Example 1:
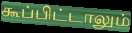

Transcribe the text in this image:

கூப்பிட்டாலும்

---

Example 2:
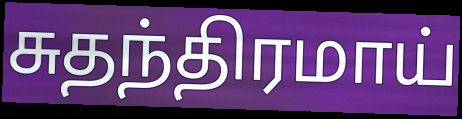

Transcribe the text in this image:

சுதந்திரமாய்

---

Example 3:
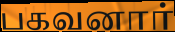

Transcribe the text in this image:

பகவனார்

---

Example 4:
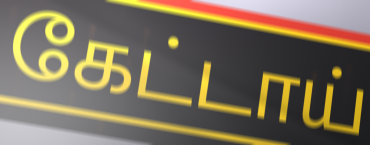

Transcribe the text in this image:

கேட்டாய்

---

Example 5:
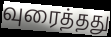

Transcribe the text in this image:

வுரைத்தது